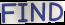
FIND